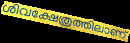
ശിവക്ഷേത്രത്തിലാണ്